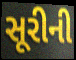
સૂરીની